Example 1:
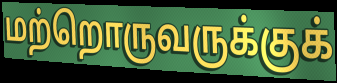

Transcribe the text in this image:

மற்றொருவருக்குக்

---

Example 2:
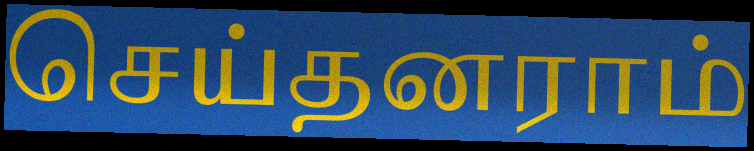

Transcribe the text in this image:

செய்தனராம்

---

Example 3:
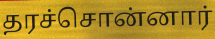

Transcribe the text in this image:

தரச்சொன்னார்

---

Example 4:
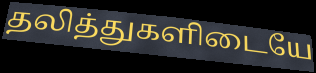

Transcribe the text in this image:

தலித்துகளிடையே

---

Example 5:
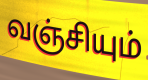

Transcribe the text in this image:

வஞ்சியும்